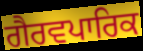
ਗੈਰਵਪਾਰਿਕ